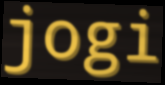
jogi